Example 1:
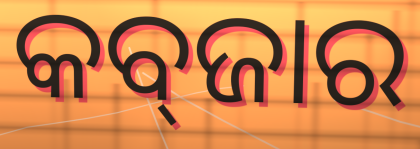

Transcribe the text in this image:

କବ୍‌ଜାର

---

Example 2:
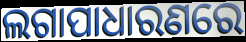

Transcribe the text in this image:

ଲଗାପାଧାରଣରେ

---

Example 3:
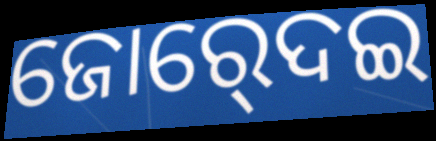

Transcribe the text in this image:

ଜୋର୍‍ଦେଇ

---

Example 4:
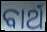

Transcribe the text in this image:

ବାର୍ଥ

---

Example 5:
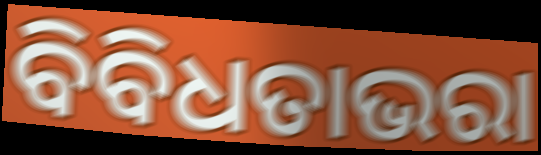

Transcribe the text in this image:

ବିବିଧତାଭରା